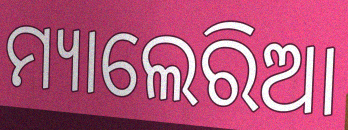
ମ୍ଯାଲେରିଆ